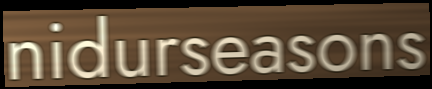
nidurseasons